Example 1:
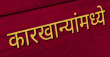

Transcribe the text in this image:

कारखान्यांमध्ये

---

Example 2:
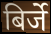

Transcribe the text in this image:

बिर्जे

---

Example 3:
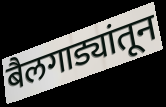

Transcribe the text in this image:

बैलगाड्यांतून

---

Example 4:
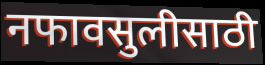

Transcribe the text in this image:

नफावसुलीसाठी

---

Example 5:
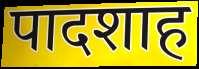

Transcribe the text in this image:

पादशाह